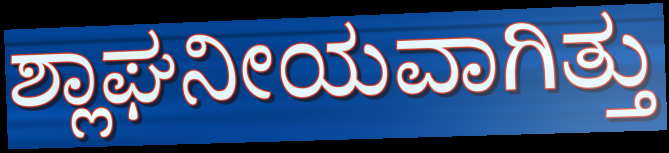
ಶ್ಲಾಘನೀಯವಾಗಿತ್ತು